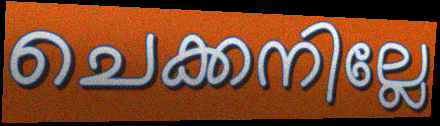
ചെക്കനില്ലേ